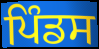
ਪਿੰਡਸ